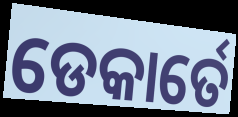
ଡେକାର୍ତେ